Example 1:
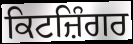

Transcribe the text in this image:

ਕਿਟਜ਼ਿੰਗਰ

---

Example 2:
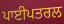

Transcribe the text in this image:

ਪਾਈਪਤਰਲ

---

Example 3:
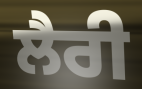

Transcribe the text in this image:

ਲੈਰੀ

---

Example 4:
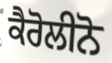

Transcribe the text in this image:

ਕੈਰੋਲੀਨੋ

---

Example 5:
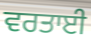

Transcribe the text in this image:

ਵਰਤਾਈ